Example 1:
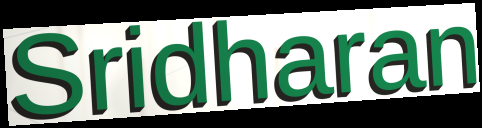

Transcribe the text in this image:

Sridharan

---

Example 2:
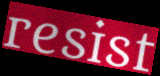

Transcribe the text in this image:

resist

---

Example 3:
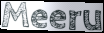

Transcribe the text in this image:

Meeru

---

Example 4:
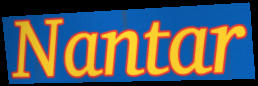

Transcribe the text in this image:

Nantar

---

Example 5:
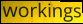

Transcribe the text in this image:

workings